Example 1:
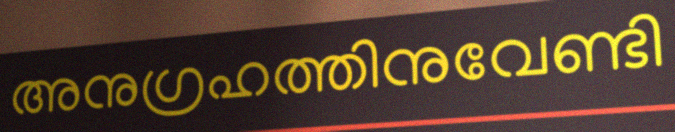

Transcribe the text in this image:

അനുഗ്രഹത്തിനുവേണ്ടി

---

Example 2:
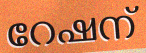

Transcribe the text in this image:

റേഷന്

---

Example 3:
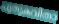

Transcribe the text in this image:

പുതുകവിതാ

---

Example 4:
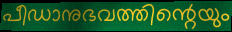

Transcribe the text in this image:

പീഡാനുഭവത്തിന്റെയും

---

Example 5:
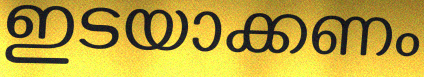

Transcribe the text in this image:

ഇടയാക്കണം